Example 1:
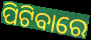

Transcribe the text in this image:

ପିଟିବାରେ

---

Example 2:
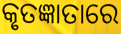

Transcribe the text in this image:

କୃତଜ୍ଞାତାରେ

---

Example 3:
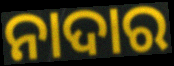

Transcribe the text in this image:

ନାଦାର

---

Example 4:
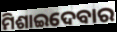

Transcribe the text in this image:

ମିଶାଇଦେବାର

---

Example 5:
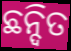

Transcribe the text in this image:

ଛନ୍ଦିତ